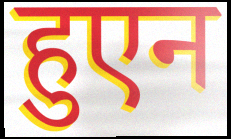
हुएन